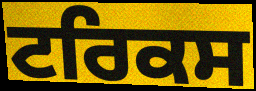
ਟਰਿਕਸ